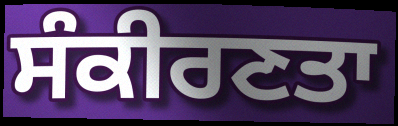
ਸੰਕੀਰਣਤਾ